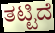
ತಟ್ಟಿದೆ